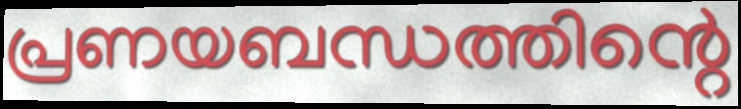
പ്രണയബന്ധത്തിന്റെ